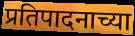
प्रतिपादनाच्या